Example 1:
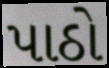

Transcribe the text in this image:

પાઠો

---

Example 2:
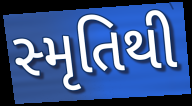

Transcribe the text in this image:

સ્મૃતિથી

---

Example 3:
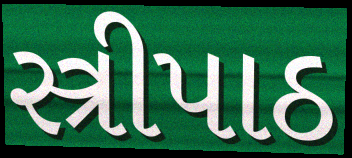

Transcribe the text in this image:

સ્ત્રીપાઠ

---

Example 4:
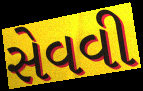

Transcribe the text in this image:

સેવવી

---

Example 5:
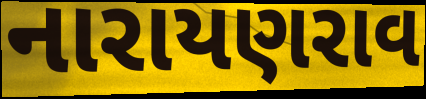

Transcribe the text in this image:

નારાયણરાવ